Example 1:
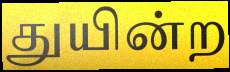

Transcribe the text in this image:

துயின்ற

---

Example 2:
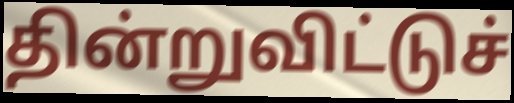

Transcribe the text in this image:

தின்றுவிட்டுச்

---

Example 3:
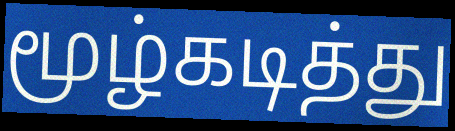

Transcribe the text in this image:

மூழ்கடித்து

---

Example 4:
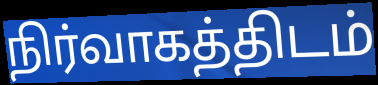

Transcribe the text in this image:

நிர்வாகத்திடம்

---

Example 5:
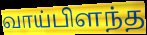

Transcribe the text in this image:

வாய்பிளந்த